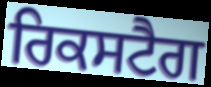
ਰਿਕਸਟੈਗ